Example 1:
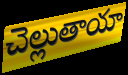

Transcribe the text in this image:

చెల్లుతాయా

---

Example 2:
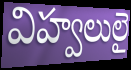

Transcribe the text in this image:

విహ్వలులై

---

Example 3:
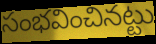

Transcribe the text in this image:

సంభవించినట్టు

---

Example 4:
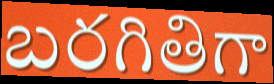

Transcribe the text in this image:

బరగితిగా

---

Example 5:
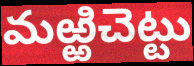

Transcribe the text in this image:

మఱ్ఱిచెట్టు